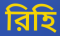
রিহি